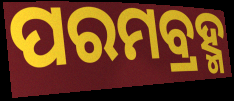
ପରମବ୍ରହ୍ମ